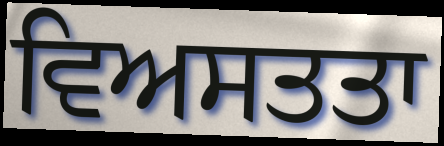
ਵਿਅਸਤਤਾ